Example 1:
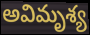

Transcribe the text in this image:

అవిమృశ్య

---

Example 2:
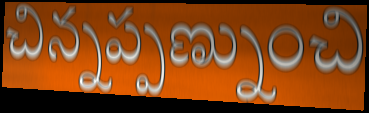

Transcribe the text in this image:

చిన్నప్పణ్నుంచి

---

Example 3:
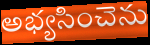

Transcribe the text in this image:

అభ్యసించెను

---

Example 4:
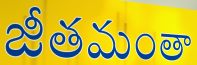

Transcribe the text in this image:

జీతమంతా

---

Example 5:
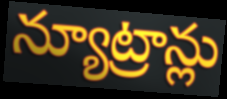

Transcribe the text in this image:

న్యూట్రాన్లు